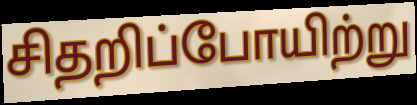
சிதறிப்போயிற்று